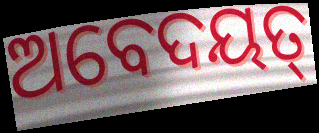
ଅବେଦୟତ୍